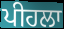
ਪੀਹਲਾ